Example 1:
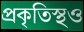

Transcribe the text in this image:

প্রকৃতিস্থও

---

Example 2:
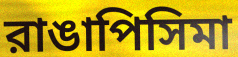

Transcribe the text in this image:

রাঙাপিসিমা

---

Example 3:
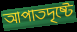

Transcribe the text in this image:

আপাতদৃষ্টে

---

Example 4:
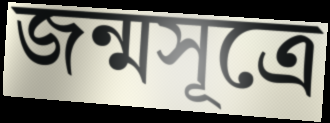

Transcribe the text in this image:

জন্মসূত্রে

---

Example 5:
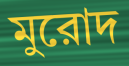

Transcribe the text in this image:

মুরোদ